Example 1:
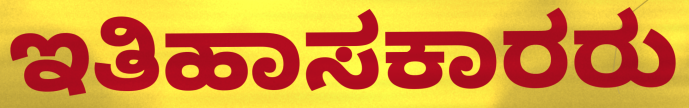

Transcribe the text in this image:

ಇತಿಹಾಸಕಾರರು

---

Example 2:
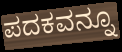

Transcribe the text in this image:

ಪದಕವನ್ನೂ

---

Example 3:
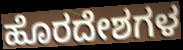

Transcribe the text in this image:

ಹೊರದೇಶಗಳ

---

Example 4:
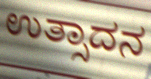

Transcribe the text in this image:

ಉತ್ಸಾದನ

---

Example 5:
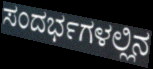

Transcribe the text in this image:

ಸಂದರ್ಭಗಳಲ್ಲಿನ